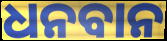
ଧନବାନ